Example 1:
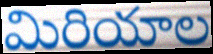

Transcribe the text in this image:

మిరియాల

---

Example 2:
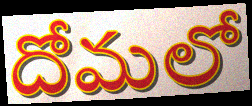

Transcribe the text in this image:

దోమలో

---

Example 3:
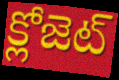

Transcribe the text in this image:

క్లోజెట్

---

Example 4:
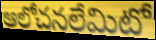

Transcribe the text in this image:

ఆలోచనలేమిటో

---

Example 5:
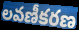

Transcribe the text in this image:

లవణీకరణ